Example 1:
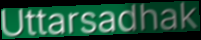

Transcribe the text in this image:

Uttarsadhak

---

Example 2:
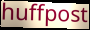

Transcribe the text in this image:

huffpost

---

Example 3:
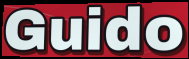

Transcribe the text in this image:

Guido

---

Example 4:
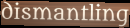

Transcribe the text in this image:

dismantling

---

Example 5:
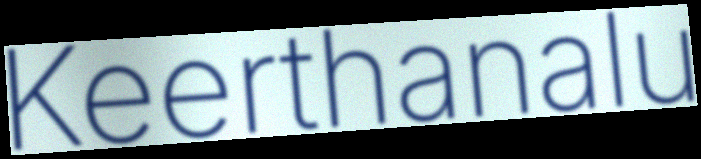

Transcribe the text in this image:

Keerthanalu